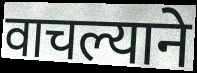
वाचल्याने